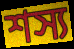
শস্য